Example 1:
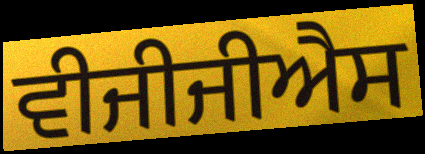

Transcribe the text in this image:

ਵੀਜੀਜੀਐਸ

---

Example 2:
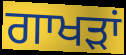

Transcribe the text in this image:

ਗਾਖੜਾਂ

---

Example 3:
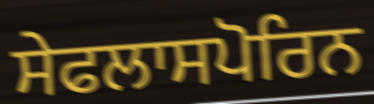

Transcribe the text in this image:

ਸੇਫਲਾਸਪੋਰਿਨ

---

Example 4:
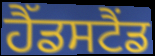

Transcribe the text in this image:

ਹੈੱਡਸਟੈਂਡ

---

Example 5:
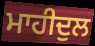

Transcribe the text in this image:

ਮਾਹੀਦੁਲ